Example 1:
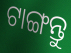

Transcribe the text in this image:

ଟାଙ୍ଗନ୍ତୁ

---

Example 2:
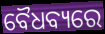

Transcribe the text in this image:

ବୈଧବ୍ୟରେ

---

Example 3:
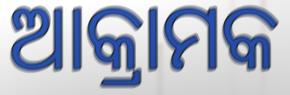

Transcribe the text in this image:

ଆକ୍ରାମକ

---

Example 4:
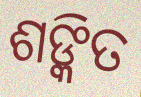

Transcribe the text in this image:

ଶଙ୍କିତ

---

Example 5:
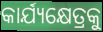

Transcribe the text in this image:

କାର୍ଯ୍ୟକ୍ଷେତ୍ରକୁ